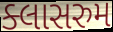
ક્લાસરુમ